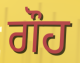
ਗੌਹ